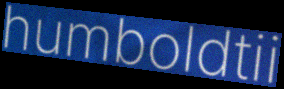
humboldtii